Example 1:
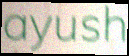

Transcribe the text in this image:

ayush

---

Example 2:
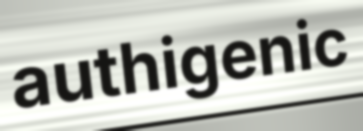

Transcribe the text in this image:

authigenic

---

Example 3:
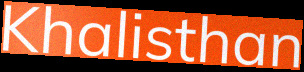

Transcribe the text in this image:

Khalisthan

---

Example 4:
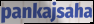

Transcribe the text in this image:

pankajsaha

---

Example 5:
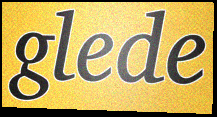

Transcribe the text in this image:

glede